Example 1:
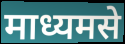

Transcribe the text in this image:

माध्यमसे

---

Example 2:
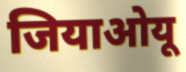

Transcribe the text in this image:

जियाओयू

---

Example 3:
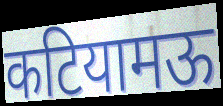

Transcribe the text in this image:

कटियामऊ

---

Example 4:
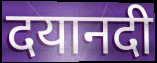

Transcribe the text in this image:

दयानदी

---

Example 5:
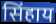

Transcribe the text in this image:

सिंहाय